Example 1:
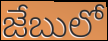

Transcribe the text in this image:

జేబులో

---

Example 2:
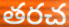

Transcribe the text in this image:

తరచ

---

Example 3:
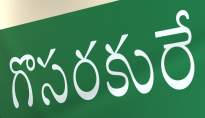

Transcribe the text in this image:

గొసరకురే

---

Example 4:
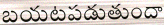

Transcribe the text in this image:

బయటపడుతుందా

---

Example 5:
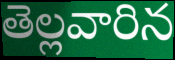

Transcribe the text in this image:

తెల్లవారిన